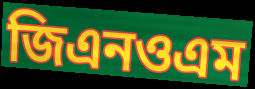
জিএনওএম